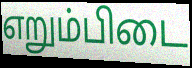
எறும்பிடை